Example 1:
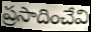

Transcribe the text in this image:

ప్రసాదించేవి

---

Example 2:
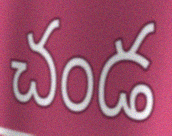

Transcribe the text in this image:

చండ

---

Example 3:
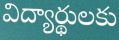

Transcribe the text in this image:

విద్యార్థులకు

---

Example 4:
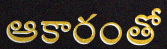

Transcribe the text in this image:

ఆకారంతో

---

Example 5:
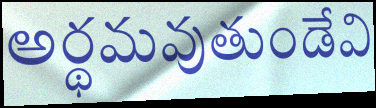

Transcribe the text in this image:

అర్థమవుతుండేవి